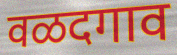
वळदगाव